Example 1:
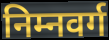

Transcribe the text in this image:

निम्नवर्ग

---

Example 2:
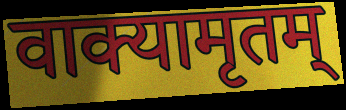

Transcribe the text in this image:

वाक्यामृतम्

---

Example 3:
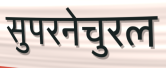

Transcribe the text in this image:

सुपरनेचुरल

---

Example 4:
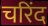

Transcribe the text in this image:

चरिंद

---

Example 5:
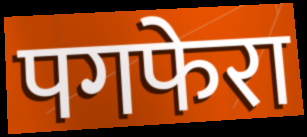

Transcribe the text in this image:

पगफेरा